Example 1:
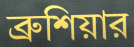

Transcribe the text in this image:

ব্রুশিয়ার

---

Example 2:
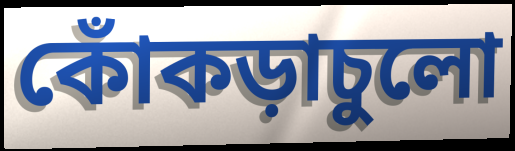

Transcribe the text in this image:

কোঁকড়াচুলো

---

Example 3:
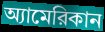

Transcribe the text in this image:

অ্যামেরিকান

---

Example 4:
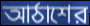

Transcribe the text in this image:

আঠাশের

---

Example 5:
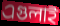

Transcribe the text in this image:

এগুলাই